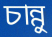
চান্নু